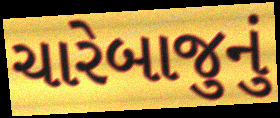
ચારેબાજુનું